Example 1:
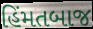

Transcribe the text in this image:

હિંમતબાજ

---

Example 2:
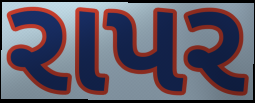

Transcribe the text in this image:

રાપર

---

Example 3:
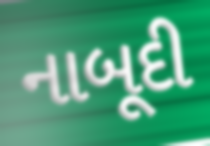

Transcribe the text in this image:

નાબૂદી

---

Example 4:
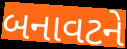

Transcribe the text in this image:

બનાવટને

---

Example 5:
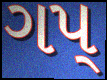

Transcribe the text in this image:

ગપ્